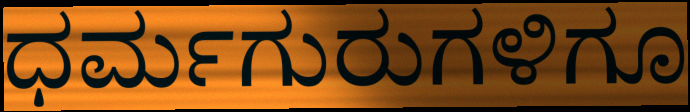
ಧರ್ಮಗುರುಗಳಿಗೂ